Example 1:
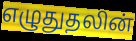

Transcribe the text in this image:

எழுதுதலின்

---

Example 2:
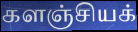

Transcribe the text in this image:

களஞ்சியக்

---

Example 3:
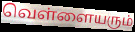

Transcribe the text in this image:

வெள்ளையரும்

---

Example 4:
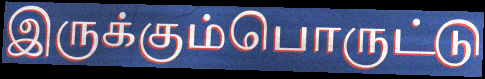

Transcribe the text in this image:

இருக்கும்பொருட்டு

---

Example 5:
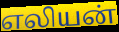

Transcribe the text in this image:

எலியன்